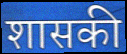
शासकी